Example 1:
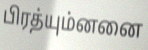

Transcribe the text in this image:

பிரத்யும்னனை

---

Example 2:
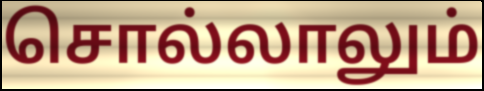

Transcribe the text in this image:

சொல்லாலும்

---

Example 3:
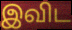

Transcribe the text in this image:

இவிட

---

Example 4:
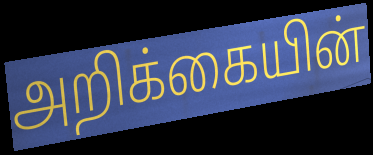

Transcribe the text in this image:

அறிக்கையின்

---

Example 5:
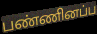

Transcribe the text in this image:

பண்ணினப்ப